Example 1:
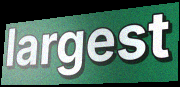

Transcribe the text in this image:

largest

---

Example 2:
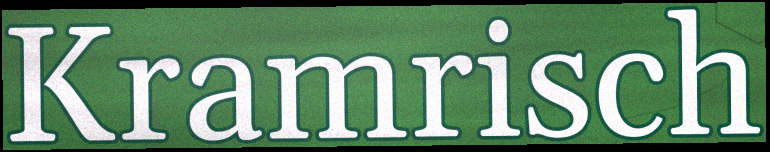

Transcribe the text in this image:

Kramrisch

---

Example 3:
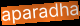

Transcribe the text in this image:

aparadha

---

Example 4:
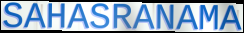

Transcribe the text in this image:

SAHASRANAMA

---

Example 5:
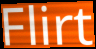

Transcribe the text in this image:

Flirt